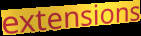
extensions